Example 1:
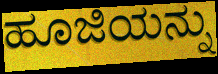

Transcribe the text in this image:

ಹೂಜಿಯನ್ನು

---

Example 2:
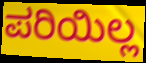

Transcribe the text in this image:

ಪರಿಯಿಲ್ಲ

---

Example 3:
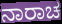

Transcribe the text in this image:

ನಾರಾಚ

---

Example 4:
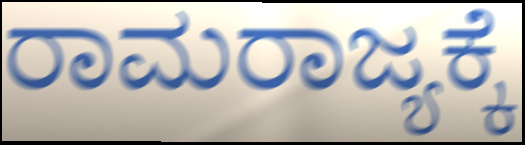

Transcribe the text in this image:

ರಾಮರಾಜ್ಯಕ್ಕೆ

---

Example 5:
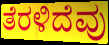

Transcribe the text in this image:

ತೆರಳಿದೆವು